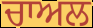
ਚਾਅਲ